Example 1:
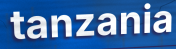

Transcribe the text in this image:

tanzania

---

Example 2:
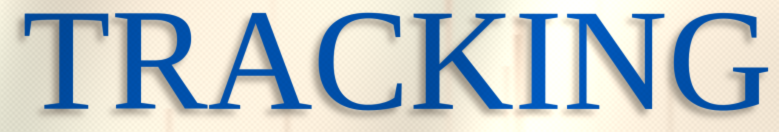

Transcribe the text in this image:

TRACKING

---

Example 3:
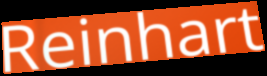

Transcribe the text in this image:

Reinhart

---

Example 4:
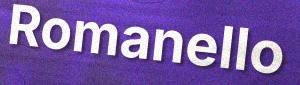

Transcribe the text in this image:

Romanello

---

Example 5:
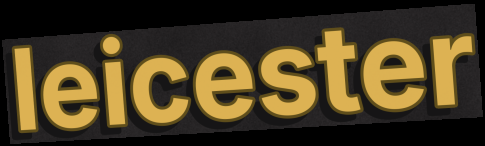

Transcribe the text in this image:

leicester